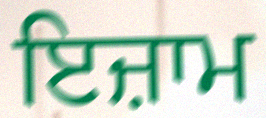
ਇਜ਼ਾਮ